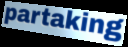
partaking